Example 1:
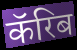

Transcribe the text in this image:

कॅरिब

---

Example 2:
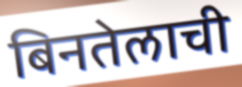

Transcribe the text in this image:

बिनतेलाची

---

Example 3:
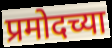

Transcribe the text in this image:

प्रमोदच्या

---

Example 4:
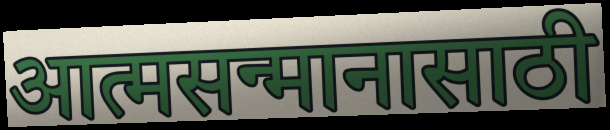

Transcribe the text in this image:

आत्मसन्मानासाठी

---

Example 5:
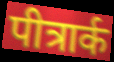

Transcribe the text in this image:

पीत्रार्क